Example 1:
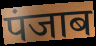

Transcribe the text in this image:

पंजाब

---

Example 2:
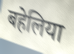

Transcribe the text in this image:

बहेलिया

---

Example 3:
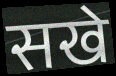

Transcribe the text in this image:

सखे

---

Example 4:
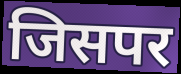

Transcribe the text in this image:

जिसपर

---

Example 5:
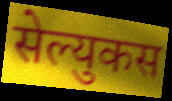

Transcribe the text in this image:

सेल्युकस